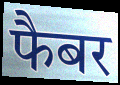
फैबर